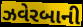
ઝવેરબાની